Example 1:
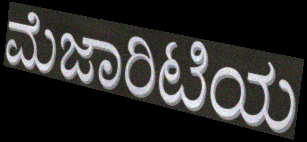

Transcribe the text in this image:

ಮೆಜಾರಿಟಿಯ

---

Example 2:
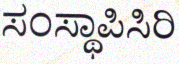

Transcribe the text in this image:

ಸಂಸ್ಥಾಪಿಸಿರಿ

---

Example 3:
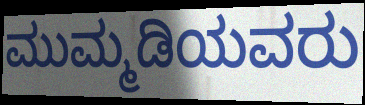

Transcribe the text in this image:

ಮುಮ್ಮಡಿಯವರು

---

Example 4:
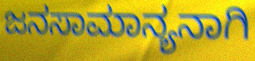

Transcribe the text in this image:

ಜನಸಾಮಾನ್ಯನಾಗಿ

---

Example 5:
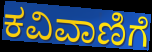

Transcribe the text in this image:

ಕವಿವಾಣಿಗೆ